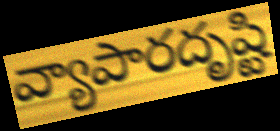
వ్యాపారదృష్టి